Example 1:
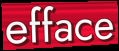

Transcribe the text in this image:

efface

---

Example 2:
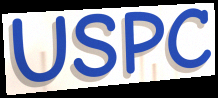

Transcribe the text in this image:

USPC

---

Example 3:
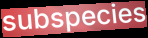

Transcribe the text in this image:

subspecies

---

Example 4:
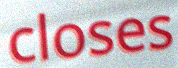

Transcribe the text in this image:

closes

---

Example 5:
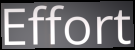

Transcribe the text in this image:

Effort